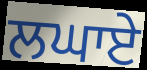
ਲਘਾਏ